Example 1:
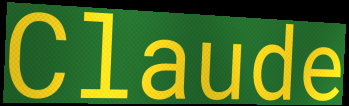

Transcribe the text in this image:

Claude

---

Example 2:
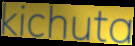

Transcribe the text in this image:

kichuta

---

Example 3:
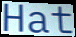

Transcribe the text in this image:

Hat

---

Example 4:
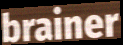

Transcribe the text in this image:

brainer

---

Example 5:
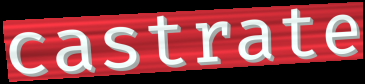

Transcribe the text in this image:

castrate